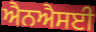
ਐਨਐਸਈ